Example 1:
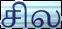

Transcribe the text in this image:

சில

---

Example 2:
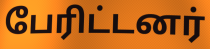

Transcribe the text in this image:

பேரிட்டனர்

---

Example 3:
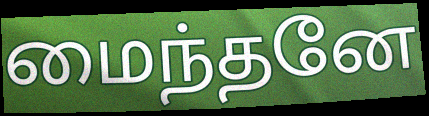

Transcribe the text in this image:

மைந்தனே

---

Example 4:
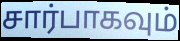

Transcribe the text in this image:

சார்பாகவும்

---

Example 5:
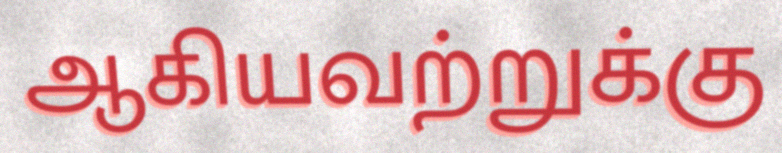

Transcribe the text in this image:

ஆகியவற்றுக்கு